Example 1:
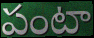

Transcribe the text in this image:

పంటా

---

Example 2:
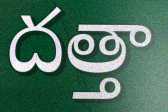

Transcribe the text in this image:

దత్తా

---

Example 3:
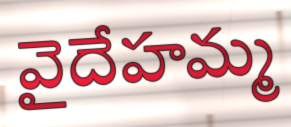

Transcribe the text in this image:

వైదేహమ్మ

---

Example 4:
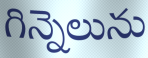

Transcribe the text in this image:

గిన్నెలును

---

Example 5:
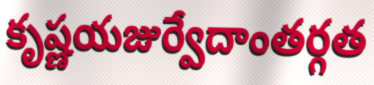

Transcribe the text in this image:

కృష్ణయజుర్వేదాంతర్గత